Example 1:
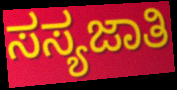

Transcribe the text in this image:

ಸಸ್ಯಜಾತಿ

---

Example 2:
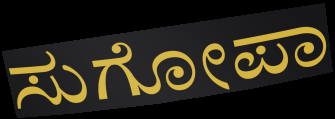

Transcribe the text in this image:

ಸುಗೋಪಾ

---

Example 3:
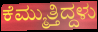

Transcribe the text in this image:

ಕೆಮ್ಮುತ್ತಿದ್ದಳು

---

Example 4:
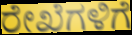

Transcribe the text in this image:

ರೇಖೆಗಳಿಗೆ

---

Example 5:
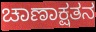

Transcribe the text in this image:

ಚಾಣಾಕ್ಷತನ